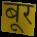
बूर